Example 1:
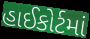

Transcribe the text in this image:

હાઈકોર્ટમાં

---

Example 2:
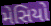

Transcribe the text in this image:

મેસિયો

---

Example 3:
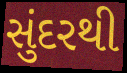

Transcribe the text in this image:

સુંદરથી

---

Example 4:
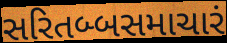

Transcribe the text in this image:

સરિતબ્બસમાચારં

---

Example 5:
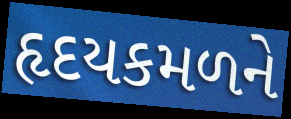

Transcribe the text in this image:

હૃદયકમળને